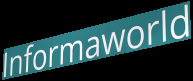
Informaworld